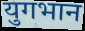
युगभान